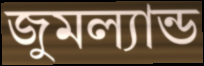
জুমল্যান্ড